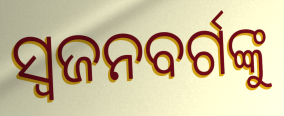
ସ୍ଵଜନବର୍ଗଙ୍କୁ